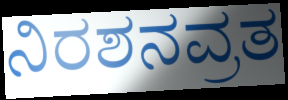
ನಿರಶನವ್ರತ